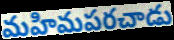
మహిమపరచాడు